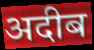
अदीब